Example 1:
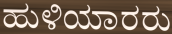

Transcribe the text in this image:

ಹುಳಿಯಾರರು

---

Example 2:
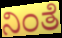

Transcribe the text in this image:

ನಿಂತೆ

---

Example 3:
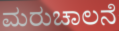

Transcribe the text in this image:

ಮರುಚಾಲನೆ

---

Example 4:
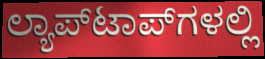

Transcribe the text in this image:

ಲ್ಯಾಪ್‌ಟಾಪ್‌ಗಳಲ್ಲಿ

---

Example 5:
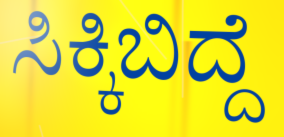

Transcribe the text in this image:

ಸಿಕ್ಕಿಬಿದ್ದೆ